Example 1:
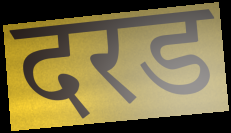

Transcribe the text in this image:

दरड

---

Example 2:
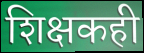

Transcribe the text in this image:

शिक्षकही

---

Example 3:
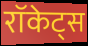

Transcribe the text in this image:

रॉकेट्स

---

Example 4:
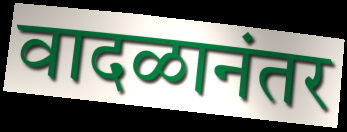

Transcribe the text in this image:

वादळानंतर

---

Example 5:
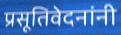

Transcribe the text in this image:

प्रसूतिवेदनांनी